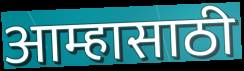
आम्हासाठी